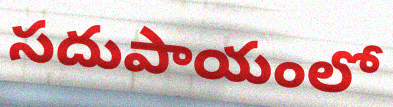
సదుపాయంలో